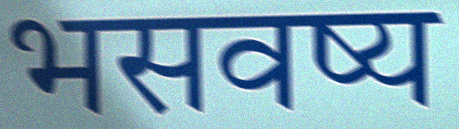
भसवष्य